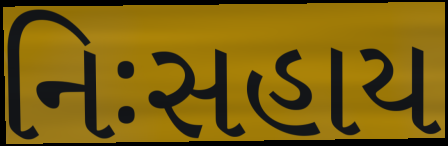
નિઃસહાય